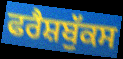
ਫਰੈਸ਼ਬੁੱਕਸ